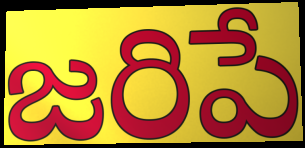
జరిపే